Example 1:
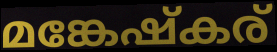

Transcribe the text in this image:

മങ്കേഷ്കര്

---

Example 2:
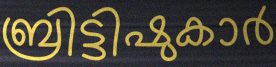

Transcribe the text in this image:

ബ്രിട്ടിഷുകാർ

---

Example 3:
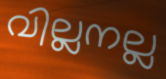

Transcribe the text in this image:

വില്ലനല്ല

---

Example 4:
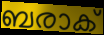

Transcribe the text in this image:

ബരാക്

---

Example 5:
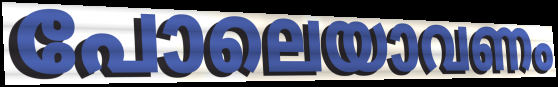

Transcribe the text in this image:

പോലെയാവണം